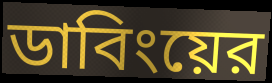
ডাবিংয়ের